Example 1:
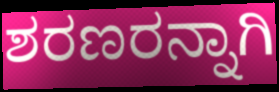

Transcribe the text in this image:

ಶರಣರನ್ನಾಗಿ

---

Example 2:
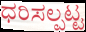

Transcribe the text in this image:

ಧರಿಸಲ್ಪಟ್ಟ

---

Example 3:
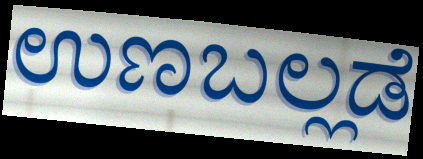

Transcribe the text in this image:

ಉಣಬಲ್ಲಡೆ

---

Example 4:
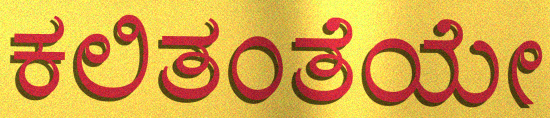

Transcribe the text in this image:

ಕಲಿತಂತೆಯೇ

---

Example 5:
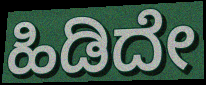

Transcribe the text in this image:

ಹಿಡಿದೇ